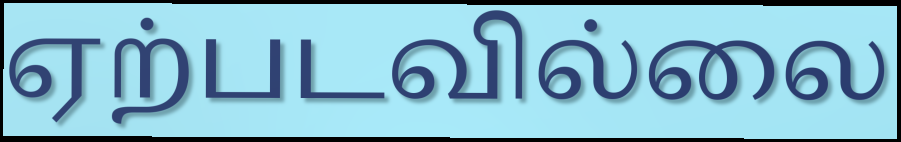
ஏற்படவில்லை